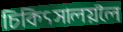
চিকিৎসালয়লৈ